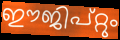
ഈജിപ്റ്റും